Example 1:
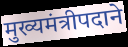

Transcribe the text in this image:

मुख्यमंत्रीपदाने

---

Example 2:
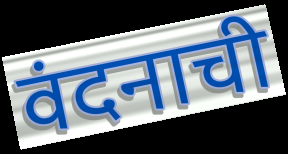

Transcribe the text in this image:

वंदनाची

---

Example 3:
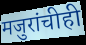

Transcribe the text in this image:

मजुरांचीही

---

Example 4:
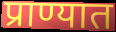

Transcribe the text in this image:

प्राण्यात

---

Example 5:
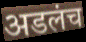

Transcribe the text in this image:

अडलंच